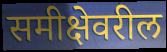
समीक्षेवरील